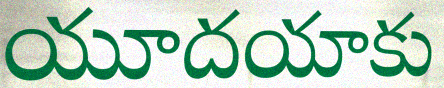
యూదయాకు